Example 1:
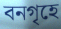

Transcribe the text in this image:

বনগৃহে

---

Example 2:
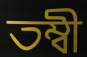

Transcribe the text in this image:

তম্বী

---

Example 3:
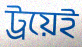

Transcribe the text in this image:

ট্রয়েই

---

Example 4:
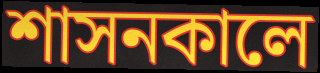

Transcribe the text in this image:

শাসনকালে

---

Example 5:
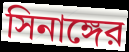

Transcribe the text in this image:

সিনাঙ্গের